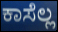
ಕಾಸೆಲ್ಲ